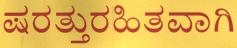
ಷರತ್ತುರಹಿತವಾಗಿ